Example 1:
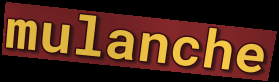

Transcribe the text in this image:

mulanche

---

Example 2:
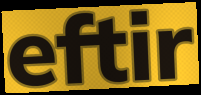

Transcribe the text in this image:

eftir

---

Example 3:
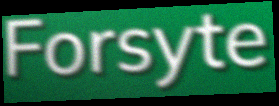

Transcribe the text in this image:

Forsyte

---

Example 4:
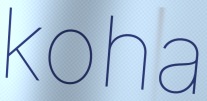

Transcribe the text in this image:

koha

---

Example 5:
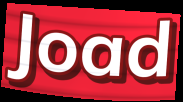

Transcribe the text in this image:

Joad